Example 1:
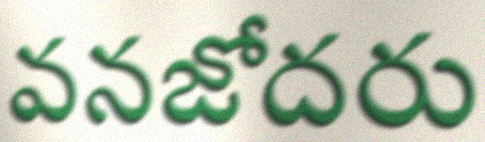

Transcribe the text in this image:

వనజోదరు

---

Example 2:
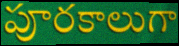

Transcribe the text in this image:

పూరకాలుగా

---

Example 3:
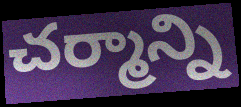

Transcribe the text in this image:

చర్మాన్ని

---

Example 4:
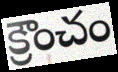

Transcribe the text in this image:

క్రౌంచం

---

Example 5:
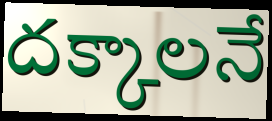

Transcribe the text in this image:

దక్కాలనే